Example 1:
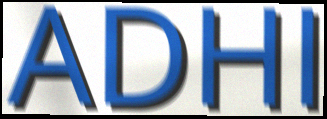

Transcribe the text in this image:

ADHI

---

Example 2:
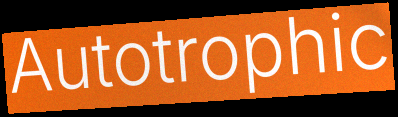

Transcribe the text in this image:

Autotrophic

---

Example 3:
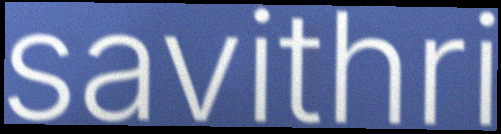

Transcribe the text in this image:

savithri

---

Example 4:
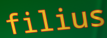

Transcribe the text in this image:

filius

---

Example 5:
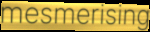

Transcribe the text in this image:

mesmerising